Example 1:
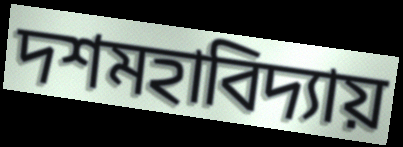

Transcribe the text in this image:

দশমহাবিদ্যায়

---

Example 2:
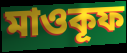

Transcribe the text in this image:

মাওকূফ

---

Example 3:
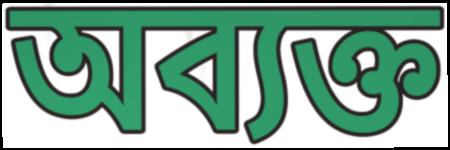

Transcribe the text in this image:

অব্যক্ত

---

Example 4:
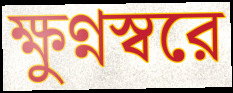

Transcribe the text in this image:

ক্ষুণ্নস্বরে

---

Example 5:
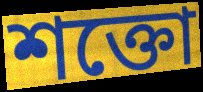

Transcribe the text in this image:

শক্তো